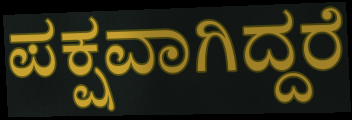
ಪಕ್ಷವಾಗಿದ್ದರೆ